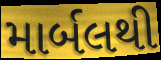
માર્બલથી